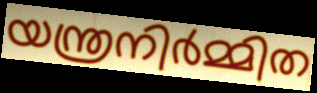
യന്ത്രനിർമ്മിത